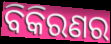
ବିକିରଣର